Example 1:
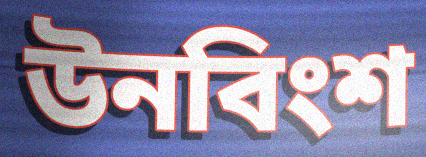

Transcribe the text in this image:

উনবিংশ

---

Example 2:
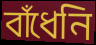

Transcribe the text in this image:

বাঁধেনি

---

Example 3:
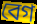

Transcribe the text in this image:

বেগ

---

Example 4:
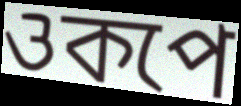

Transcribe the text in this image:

ওকপে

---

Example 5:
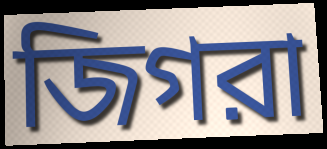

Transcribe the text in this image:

জিগরা